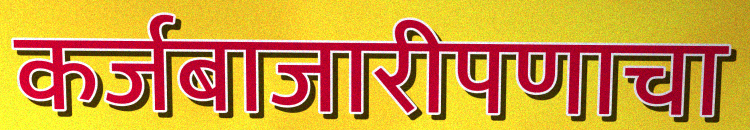
कर्जबाजारीपणाचा